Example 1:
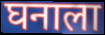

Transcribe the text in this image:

घनाला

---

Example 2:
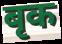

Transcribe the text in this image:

बृक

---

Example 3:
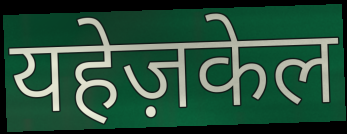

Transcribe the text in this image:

यहेज़केल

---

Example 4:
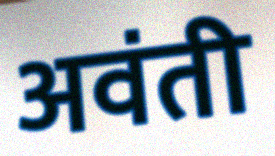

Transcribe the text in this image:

अवंती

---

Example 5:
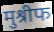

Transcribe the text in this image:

मुश्रीफ